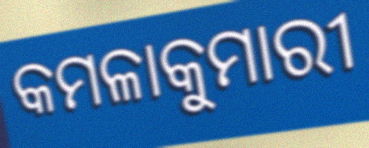
କମଳାକୁମାରୀ